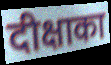
दीक्षाका